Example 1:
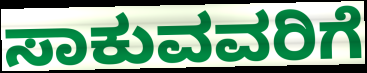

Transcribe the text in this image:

ಸಾಕುವವರಿಗೆ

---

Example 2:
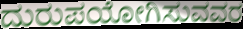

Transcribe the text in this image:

ದುರುಪಯೋಗಿಸುವವರ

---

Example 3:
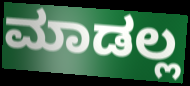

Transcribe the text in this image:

ಮಾಡಲ್ಲ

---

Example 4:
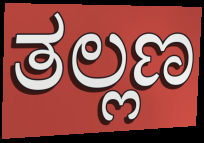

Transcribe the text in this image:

ತಲ್ಲಣ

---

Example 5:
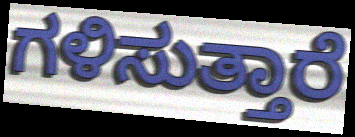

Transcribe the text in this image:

ಗಳಿಸುತ್ತಾರೆ